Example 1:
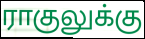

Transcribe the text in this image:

ராகுலுக்கு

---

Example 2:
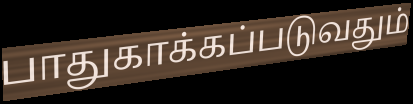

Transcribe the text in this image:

பாதுகாக்கப்படுவதும்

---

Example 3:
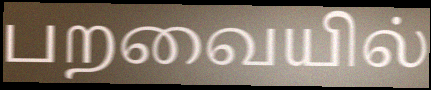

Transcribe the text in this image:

பறவையில்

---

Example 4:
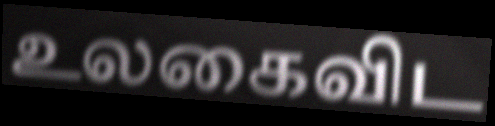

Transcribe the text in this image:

உலகைவிட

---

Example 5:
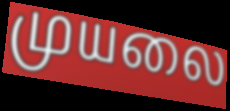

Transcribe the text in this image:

முயலை